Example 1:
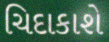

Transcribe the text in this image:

ચિદાકાશે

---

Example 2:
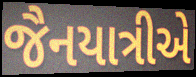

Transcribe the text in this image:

જૈનયાત્રીએ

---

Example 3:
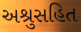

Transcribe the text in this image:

અશ્રુસહિત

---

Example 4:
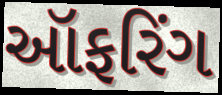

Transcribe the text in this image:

ઑફરિંગ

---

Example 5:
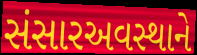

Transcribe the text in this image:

સંસારઅવસ્થાને